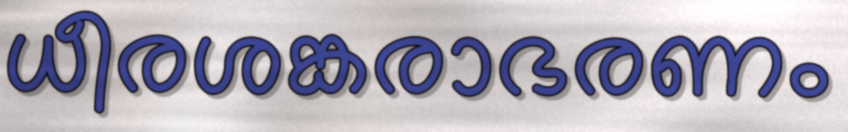
ധീരശങ്കരാഭരണം